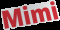
Mimi